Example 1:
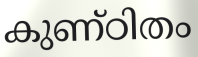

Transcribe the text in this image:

കുണ്ഠിതം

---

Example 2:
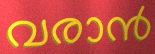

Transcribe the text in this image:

വരാൻ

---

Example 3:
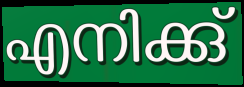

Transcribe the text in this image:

എനിക്കു്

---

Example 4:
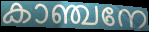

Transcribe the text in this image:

കാഞ്ചനേ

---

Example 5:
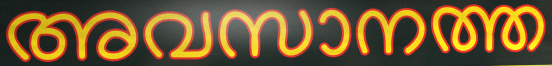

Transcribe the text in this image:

അവസാനത്ത